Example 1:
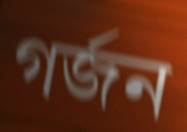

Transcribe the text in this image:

গর্জন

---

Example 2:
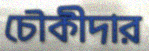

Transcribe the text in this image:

চৌকীদার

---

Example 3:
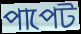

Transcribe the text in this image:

পাপেট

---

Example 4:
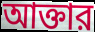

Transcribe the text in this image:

আক্তার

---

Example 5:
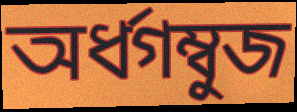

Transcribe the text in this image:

অর্ধগম্বুজ